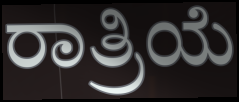
ರಾತ್ರಿಯೆ